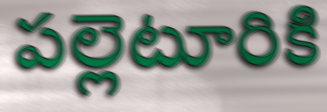
పల్లెటూరికి